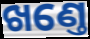
ଖଣ୍ତେ